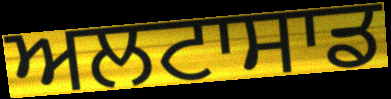
ਅਲਟਾਸਾਡ